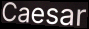
Caesar